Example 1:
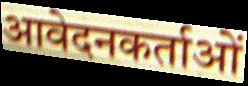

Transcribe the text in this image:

आवेदनकर्ताओं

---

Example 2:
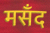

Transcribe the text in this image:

मसँद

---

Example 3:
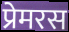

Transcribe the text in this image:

प्रेमरस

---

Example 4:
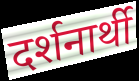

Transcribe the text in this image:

दर्शनार्थी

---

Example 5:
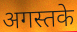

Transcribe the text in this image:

अगस्तके